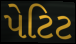
પેટિટ